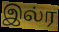
இல்ர